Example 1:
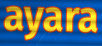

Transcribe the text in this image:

ayara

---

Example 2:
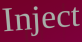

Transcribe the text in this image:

Inject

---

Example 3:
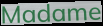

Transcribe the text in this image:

Madame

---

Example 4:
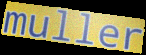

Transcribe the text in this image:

muller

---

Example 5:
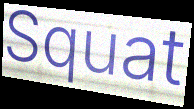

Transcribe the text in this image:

Squat